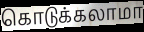
கொடுக்கலாமா